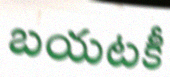
బయటకీ